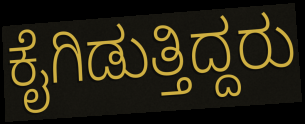
ಕೈಗಿಡುತ್ತಿದ್ದರು